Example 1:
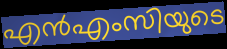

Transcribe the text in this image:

എൻഎംസിയുടെ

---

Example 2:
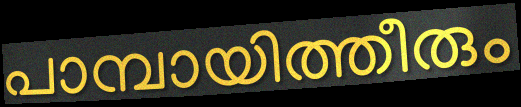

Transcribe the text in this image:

പാമ്പായിത്തീരും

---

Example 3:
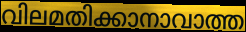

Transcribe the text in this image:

വിലമതിക്കാനാവാത്ത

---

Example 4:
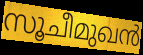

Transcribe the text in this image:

സൂചീമുഖൻ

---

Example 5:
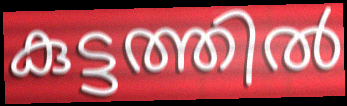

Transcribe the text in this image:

കുട്ടത്തിൽ